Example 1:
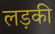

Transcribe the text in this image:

लड़की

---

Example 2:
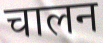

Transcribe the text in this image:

चालन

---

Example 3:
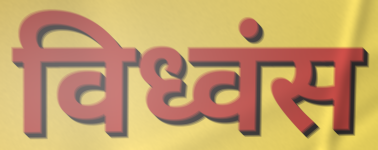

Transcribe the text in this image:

विध्वंस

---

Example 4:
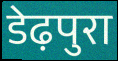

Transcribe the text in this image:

डेढ़पुरा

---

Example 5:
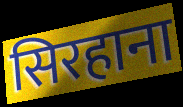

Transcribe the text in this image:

सिरहाना